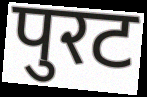
पुरट